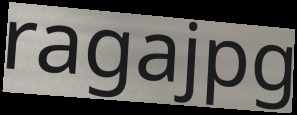
ragajpg